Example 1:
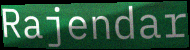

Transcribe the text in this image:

Rajendar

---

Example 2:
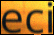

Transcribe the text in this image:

eci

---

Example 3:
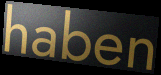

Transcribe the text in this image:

haben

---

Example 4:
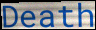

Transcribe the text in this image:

Death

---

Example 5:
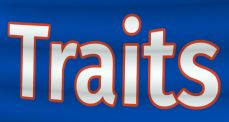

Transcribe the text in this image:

Traits